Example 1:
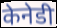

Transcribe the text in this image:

केनेडी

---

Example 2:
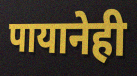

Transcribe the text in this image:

पायानेही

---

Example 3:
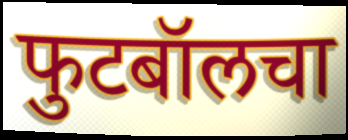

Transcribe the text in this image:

फुटबॉलचा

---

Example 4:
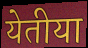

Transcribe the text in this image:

येतीया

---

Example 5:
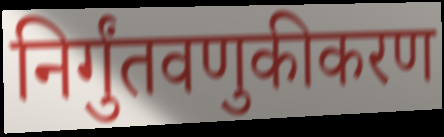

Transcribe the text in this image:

निर्गुंतवणुकीकरण